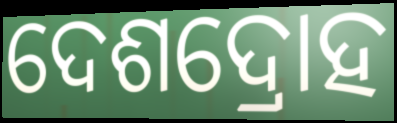
ଦେଶଦ୍ରୋହ